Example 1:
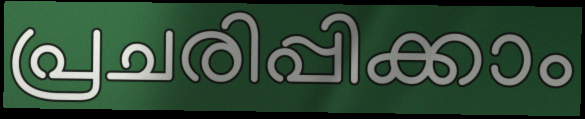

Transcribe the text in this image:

പ്രചരിപ്പിക്കാം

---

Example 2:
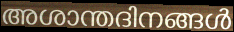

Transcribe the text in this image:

അശാന്തദിനങ്ങൾ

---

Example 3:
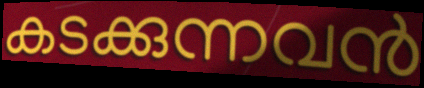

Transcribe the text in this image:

കടക്കുന്നവൻ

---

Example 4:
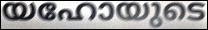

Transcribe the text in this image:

യഹോയുടെ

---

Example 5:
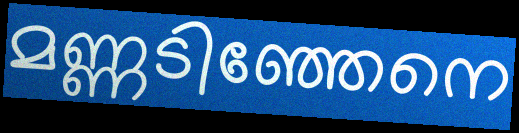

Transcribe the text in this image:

മണ്ണടിഞ്ഞേനെ